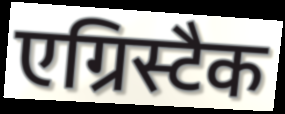
एग्रिस्टैक